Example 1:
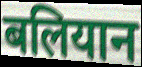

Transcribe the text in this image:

बलियान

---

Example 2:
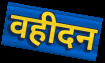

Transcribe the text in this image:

वहीदन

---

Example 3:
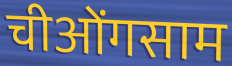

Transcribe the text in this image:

चीओंगसाम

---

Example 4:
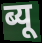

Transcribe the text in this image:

ब्यू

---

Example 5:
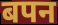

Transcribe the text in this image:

बपन